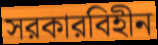
সরকারবিহীন